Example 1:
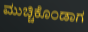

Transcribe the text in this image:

ಮುಚ್ಚಿಕೊಂಡಾಗ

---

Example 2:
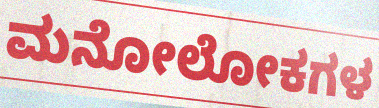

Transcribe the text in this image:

ಮನೋಲೋಕಗಳ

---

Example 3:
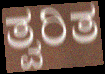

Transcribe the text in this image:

ತ್ವರಿತ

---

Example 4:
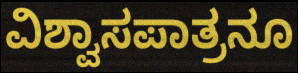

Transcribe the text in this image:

ವಿಶ್ವಾಸಪಾತ್ರನೂ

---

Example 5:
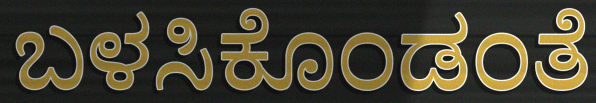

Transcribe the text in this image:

ಬಳಸಿಕೊಂಡಂತೆ